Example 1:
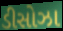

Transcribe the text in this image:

ડીસોઝા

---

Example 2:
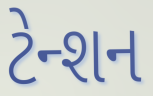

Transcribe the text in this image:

ટેન્શન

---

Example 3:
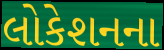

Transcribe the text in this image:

લોકેશનના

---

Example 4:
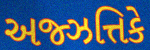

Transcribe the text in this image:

અજ્ઝત્તિકે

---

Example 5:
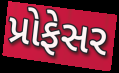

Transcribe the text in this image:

પ્રોફેસર